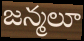
జన్మలూ